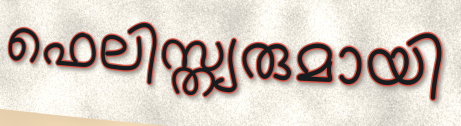
ഫെലിസ്ത്യരുമായി